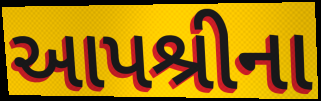
આપશ્રીના